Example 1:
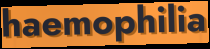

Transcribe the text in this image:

haemophilia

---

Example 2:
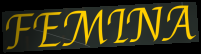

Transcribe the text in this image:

FEMINA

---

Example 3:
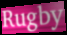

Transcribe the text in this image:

Rugby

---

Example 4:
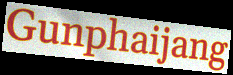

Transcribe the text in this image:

Gunphaijang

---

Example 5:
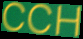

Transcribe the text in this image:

CCH